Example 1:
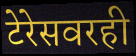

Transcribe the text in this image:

टेरेसवरही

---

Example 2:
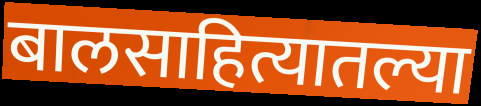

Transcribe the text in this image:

बालसाहित्यातल्या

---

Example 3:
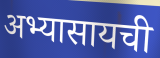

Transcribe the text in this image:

अभ्यासायची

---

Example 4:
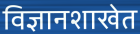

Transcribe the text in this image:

विज्ञानशाखेत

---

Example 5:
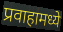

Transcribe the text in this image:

प्रवाहामध्ये